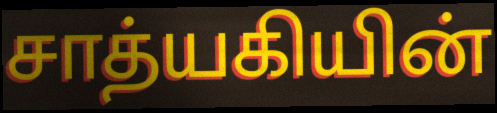
சாத்யகியின்